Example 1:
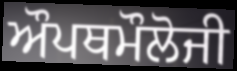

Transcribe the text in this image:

ਔਪਥਮੌਲੋਜੀ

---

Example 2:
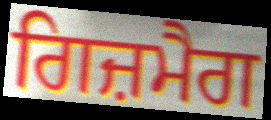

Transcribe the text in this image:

ਗਿਜ਼ਮੈਗ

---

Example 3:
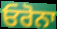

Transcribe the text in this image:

ਓਰੋਨਾ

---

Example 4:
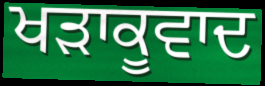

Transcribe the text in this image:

ਖੜਾਕੂਵਾਦ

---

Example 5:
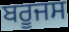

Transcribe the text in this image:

ਬਰੂਜਸ